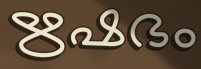
ഋഷഭം